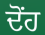
ਦੋਂਹ